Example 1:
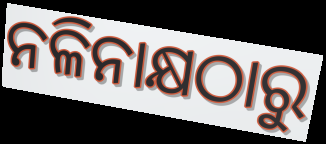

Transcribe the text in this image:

ନଳିନାକ୍ଷଠାରୁ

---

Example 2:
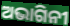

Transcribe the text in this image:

ଅଭାଗିନୀ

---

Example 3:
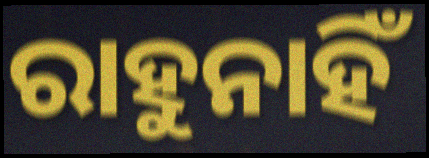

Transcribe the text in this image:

ରାହୁନାହିଁ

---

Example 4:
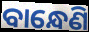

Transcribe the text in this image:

ବାନ୍ଧେଣି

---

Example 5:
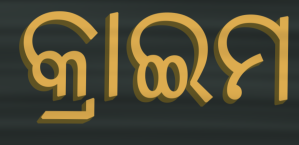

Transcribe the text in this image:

କ୍ରାଇମ